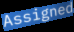
Assigned